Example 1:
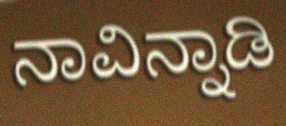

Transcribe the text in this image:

ನಾವಿನ್ನಾಡಿ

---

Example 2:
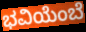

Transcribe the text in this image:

ಭವಿಯೆಂಬೆ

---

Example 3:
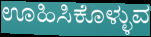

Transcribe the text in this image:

ಊಹಿಸಿಕೊಳ್ಳುವ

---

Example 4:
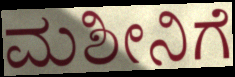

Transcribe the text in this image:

ಮಶೀನಿಗೆ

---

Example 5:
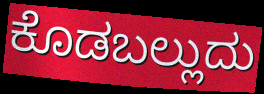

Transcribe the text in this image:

ಕೊಡಬಲ್ಲುದು